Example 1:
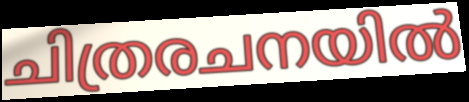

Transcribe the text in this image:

ചിത്രരചനയിൽ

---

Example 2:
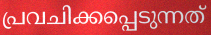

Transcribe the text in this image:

പ്രവചിക്കപ്പെടുന്നത്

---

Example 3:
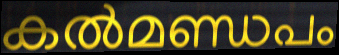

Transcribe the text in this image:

കൽമണ്ഡപം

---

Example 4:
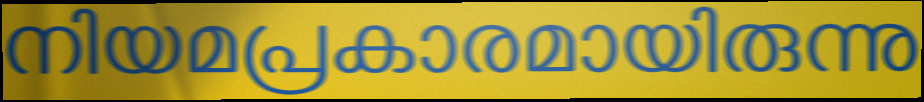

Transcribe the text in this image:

നിയമപ്രകാരമായിരുന്നു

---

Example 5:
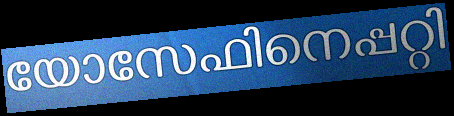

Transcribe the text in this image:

യോസേഫിനെപ്പറ്റി